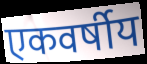
एकवर्षीय